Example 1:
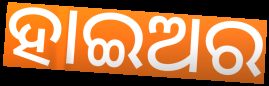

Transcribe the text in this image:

ହାଇଅର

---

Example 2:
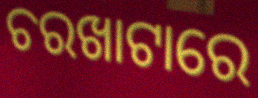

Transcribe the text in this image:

ଚରଖାଟାରେ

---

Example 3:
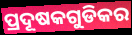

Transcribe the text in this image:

ପ୍ରଦୂଷକଗୁଡିକର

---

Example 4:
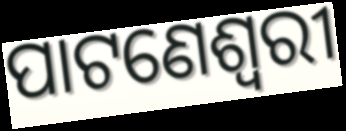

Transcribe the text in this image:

ପାଟଣେଶ୍ୱରୀ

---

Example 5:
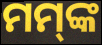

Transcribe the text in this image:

ମମ୍‌ଙ୍କ